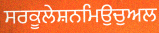
ਸਰਕੂਲੇਸ਼ਨਮਿਉਚੁਅਲ